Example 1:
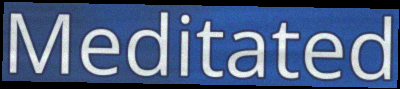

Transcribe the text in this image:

Meditated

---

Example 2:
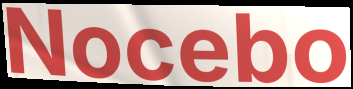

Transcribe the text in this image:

Nocebo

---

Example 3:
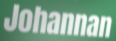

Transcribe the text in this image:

Johannan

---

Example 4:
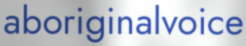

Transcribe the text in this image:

aboriginalvoice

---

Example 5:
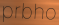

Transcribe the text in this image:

prbho